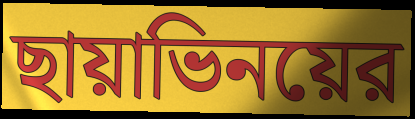
ছায়াভিনয়ের